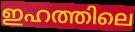
ഇഹത്തിലെ